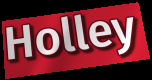
Holley